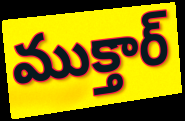
ముక్తార్